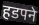
हडपने